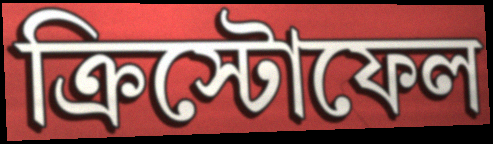
ক্রিস্টোফেল